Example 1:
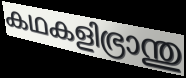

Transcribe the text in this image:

കഥകളിഭ്രാന്തു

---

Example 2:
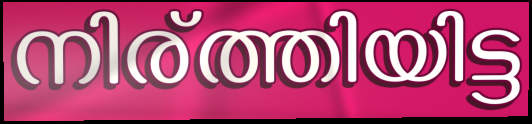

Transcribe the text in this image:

നിര്ത്തിയിട്ട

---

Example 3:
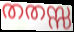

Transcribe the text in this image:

തതസ്സ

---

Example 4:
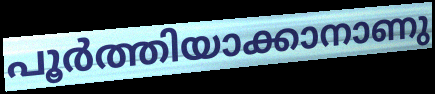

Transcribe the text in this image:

പൂർത്തിയാക്കാനാണു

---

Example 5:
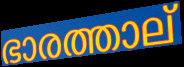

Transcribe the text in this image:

ഭാരത്താല്